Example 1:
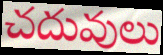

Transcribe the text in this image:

చదువులు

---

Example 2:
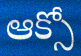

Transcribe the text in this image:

ఆక్సో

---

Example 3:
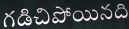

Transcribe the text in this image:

గడిచిపోయినది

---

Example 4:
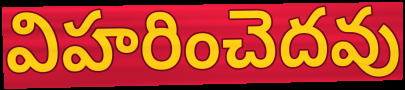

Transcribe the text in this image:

విహరించెదవు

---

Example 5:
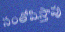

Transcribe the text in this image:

సంతోషిస్తావు